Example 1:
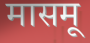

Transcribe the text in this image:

मासमू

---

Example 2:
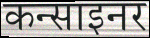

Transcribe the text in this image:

कन्साइनर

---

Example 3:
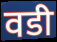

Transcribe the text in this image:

वडी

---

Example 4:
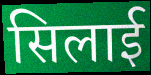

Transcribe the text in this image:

सिलाई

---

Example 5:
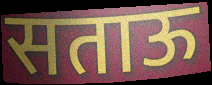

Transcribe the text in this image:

सताऊ